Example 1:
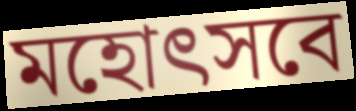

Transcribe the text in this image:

মহোৎসবে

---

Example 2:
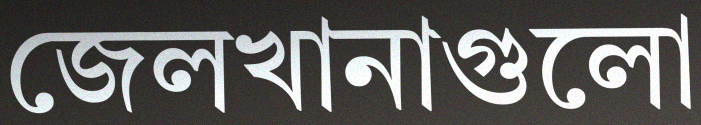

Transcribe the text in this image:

জেলখানাগুলো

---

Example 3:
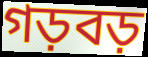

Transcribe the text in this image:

গড়বড়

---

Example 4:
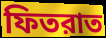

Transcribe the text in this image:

ফিতরাত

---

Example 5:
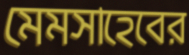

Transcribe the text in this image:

মেমসাহেবের